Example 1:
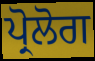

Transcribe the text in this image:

ਪ੍ਰੋਲੋਗ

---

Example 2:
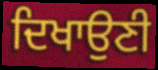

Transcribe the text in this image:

ਦਿਖਾਉਣੀ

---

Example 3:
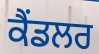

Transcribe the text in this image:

ਕੈਂਡਲਰ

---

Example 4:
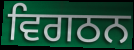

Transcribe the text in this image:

ਵਿਗਠਨ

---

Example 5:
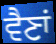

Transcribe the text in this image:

ਵੈਣਾਂ